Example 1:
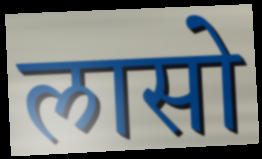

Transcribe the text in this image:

लासो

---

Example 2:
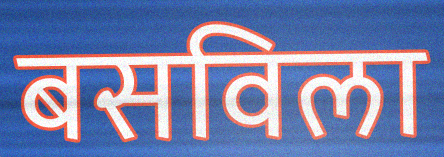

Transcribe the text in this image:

बसविला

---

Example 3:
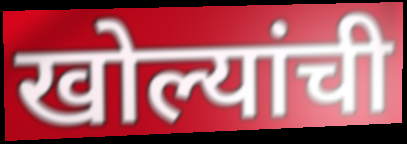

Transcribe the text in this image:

खोल्यांची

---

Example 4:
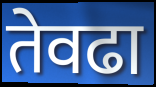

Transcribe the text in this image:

तेवढा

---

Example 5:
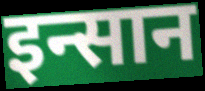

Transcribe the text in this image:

इन्सान